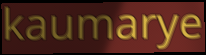
kaumarye